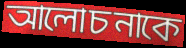
আলোচনাকে